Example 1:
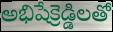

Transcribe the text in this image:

అభిషేక్రెడ్డిలతో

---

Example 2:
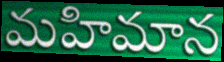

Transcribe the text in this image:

మహిమాన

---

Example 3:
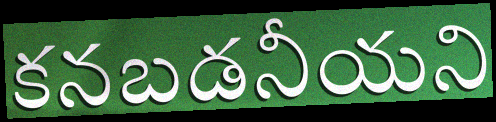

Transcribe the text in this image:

కనబడనీయని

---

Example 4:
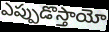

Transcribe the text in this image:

ఎప్పుడొస్తాయో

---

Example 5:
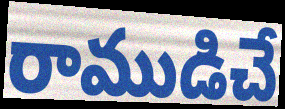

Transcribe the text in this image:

రాముడిచే